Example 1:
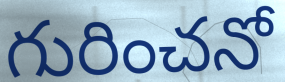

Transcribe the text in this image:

గురించనో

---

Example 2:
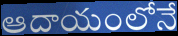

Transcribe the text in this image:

ఆదాయంలోనే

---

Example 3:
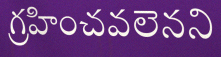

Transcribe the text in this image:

గ్రహించవలెనని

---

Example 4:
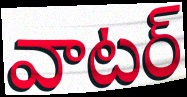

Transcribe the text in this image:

వాటర్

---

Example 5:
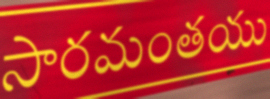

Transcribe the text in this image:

సారమంతయు